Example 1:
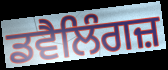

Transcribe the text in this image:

ਡਵੈਲਿੰਗਜ਼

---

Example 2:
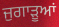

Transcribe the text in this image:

ਜੁਗਾੜੂਆਂ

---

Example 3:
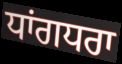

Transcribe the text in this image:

ਧਾਂਗਧਰਾ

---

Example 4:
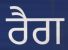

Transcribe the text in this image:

ਰੈਗ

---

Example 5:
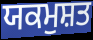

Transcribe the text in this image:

ਯਕਮੁਸ਼ਤ